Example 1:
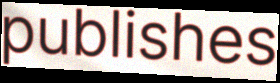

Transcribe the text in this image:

publishes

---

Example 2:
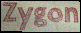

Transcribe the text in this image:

Zygon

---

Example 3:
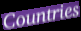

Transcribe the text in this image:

Countries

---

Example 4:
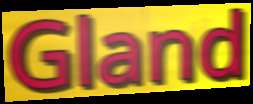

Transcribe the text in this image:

Gland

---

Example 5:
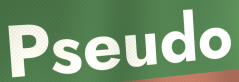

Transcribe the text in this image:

Pseudo